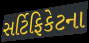
સર્ટિફિકેટના